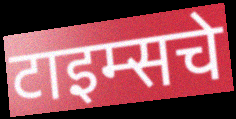
टाइम्सचे